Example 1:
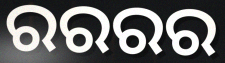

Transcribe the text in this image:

ରରରର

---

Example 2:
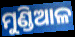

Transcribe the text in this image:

ମୁଣ୍ଡିଆଳ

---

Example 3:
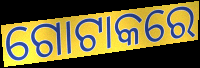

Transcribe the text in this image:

ଗୋଟାକରେ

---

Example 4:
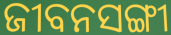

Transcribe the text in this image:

ଜୀବନସଙ୍ଗୀ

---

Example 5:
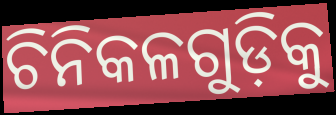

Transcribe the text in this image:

ଚିନିକଳଗୁଡ଼ିକୁ